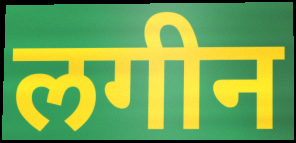
लगीन